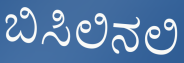
ಬಿಸಿಲಿನಲಿ